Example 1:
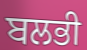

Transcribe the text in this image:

ਬਲਭੀ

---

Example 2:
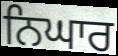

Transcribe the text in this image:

ਨਿਘਾਰ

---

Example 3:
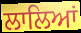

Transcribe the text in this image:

ਲਾਲਿਆਂ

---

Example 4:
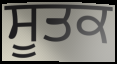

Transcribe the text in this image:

ਸੂਤਕ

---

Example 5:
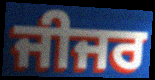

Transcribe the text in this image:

ਜੀਜਰ